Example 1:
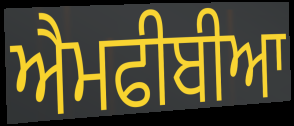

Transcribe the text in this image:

ਐਮਫੀਬੀਆ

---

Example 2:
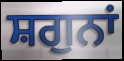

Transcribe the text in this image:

ਸ਼ਗੁਨਾਂ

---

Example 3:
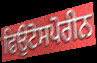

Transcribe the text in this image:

ਫਿਉਟੋਸਪੋਰੀਨ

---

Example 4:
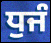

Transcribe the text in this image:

ਧੁਜੰ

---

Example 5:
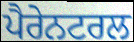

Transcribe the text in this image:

ਪੈਰੇਨਟਰਲ